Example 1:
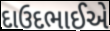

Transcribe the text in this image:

દાઉદભાઈએ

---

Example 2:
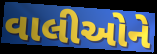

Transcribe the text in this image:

વાલીઓને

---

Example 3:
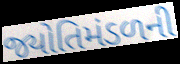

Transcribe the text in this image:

જ્યોતિમંડળની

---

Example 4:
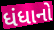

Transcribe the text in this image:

ધંધાનો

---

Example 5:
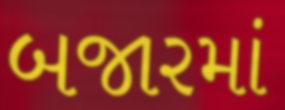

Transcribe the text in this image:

બજારમાં